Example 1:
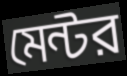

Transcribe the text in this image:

মেন্টর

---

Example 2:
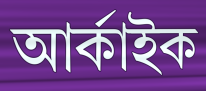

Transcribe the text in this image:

আর্কাইক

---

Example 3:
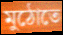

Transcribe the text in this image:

মুঠোতে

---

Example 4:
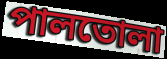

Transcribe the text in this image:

পালতোলা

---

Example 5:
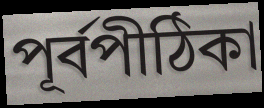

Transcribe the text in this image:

পূর্বপীঠিকা